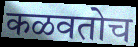
कळवतोच